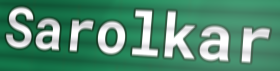
Sarolkar